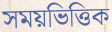
সময়ভিত্তিক